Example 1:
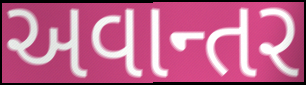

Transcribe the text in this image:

અવાન્તર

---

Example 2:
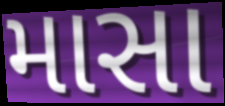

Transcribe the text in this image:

માસા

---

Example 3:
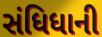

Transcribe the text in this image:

સંધિધાની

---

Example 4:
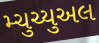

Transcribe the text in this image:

મ્ચુચ્યુઅલ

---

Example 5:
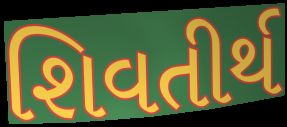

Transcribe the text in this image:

શિવતીર્થ